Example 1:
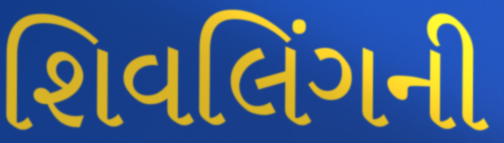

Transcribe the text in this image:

શિવલિંગની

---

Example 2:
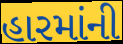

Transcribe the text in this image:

હારમાંની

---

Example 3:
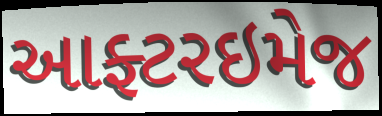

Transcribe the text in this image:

આફ્ટરઇમેજ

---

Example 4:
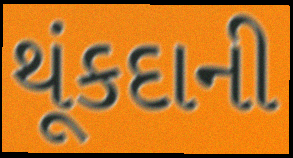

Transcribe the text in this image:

થૂંકદાની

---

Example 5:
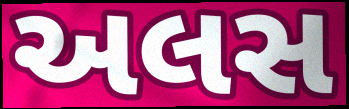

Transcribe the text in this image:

અલસ